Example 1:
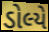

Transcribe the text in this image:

ડોલ્યે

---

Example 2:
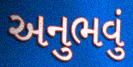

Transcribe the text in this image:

અનુભવું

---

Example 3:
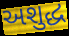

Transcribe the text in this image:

અશુદ્ધ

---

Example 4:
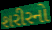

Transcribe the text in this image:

શરીરનો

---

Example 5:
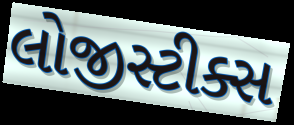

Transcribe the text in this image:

લોજીસ્ટીક્સ